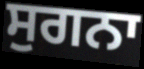
ਸੁਗਨਾ